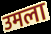
उमला